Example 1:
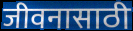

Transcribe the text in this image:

जीवनासाठी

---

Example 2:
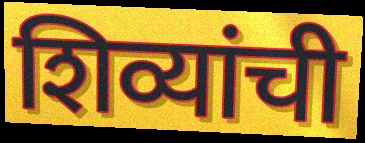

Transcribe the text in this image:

शिव्यांची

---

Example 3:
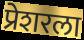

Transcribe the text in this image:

प्रेशरला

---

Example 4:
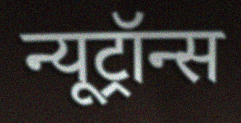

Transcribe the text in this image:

न्यूट्रॉन्स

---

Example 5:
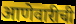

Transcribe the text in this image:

आणेवारीची